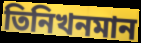
তিনিখনমান